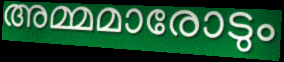
അമ്മമാരോടും